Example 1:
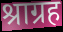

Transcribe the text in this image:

श्राग्रह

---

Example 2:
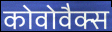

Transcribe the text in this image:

कोवोवैक्स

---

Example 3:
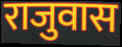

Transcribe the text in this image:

राजुवास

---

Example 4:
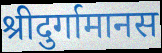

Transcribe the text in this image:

श्रीदुर्गामानस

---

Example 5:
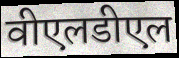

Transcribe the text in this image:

वीएलडीएल